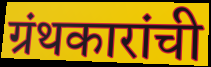
ग्रंथकारांची